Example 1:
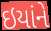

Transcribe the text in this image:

ઇયાંને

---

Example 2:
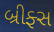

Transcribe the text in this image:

બ્રીફ્સ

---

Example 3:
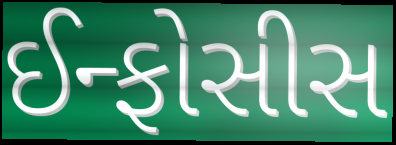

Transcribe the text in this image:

ઈન્ફોસીસ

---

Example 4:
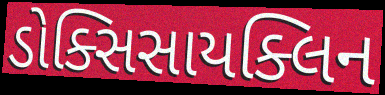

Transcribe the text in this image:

ડોક્સિસાયક્લિન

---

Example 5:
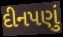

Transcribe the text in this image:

દીનપણું